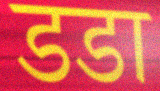
डडा